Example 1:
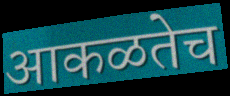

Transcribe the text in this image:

आकळतेच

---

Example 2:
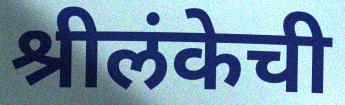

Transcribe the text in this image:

श्रीलंकेची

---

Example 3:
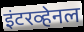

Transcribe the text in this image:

इंटरव्हेनल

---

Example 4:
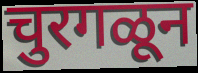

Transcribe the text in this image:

चुरगळून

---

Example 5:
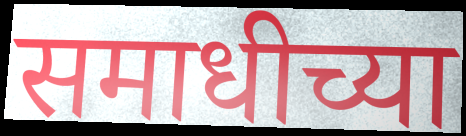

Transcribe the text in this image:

समाधीच्या